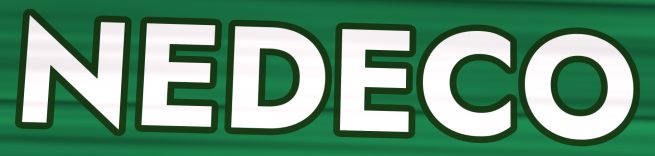
NEDECO